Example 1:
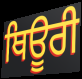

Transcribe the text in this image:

ਥਿਊਰੀ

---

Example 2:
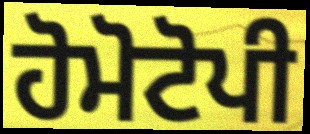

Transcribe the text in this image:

ਹੋਮੋਟੋਪੀ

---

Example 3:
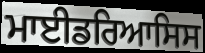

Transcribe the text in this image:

ਮਾਈਡਰਿਆਸਿਸ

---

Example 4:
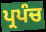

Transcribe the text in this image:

ਪ੍ਰਪੰਚ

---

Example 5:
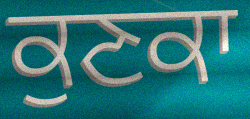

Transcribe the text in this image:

ਕੁਣਕਾ